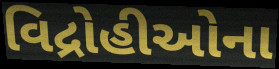
વિદ્રોહીઓના